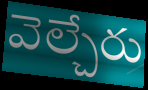
వెల్చేరు